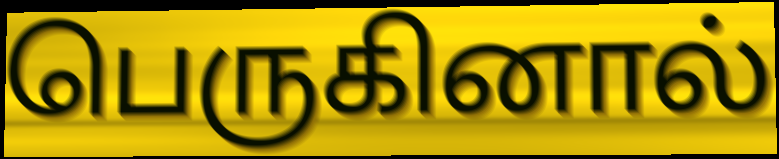
பெருகினால்